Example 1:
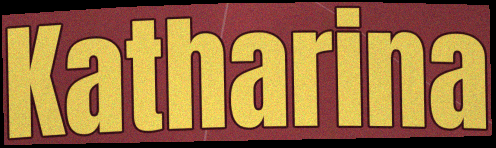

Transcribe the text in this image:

Katharina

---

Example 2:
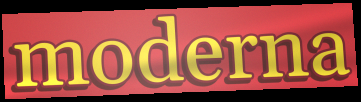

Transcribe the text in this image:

moderna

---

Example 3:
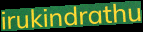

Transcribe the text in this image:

irukindrathu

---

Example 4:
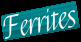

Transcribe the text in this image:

Ferrites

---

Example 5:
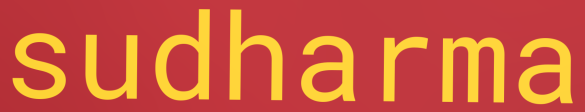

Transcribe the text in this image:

sudharma